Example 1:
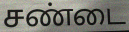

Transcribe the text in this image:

சண்டை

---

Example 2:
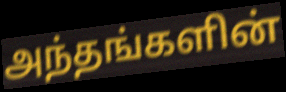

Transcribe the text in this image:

அந்தங்களின்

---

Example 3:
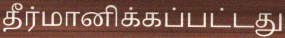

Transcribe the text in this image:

தீர்மானிக்கப்பட்டது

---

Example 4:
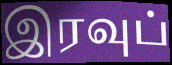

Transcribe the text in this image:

இரவுப்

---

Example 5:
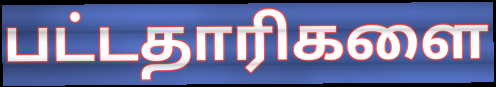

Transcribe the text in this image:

பட்டதாரிகளை